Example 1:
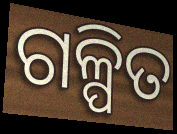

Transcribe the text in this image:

ଗଳ୍ପିତ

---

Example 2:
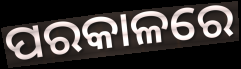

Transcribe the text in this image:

ପରକାଳରେ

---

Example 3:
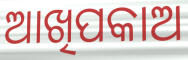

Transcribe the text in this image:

ଆଖିପକାଅ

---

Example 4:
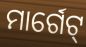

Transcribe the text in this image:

ମାର୍ଗେଟ୍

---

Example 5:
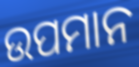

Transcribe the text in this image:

ଉପମାନ